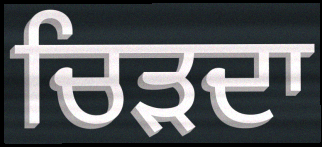
ਚਿੜਦਾ